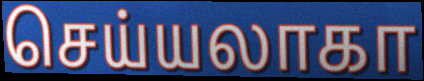
செய்யலாகா